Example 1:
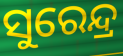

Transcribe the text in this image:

ସୁରେନ୍ଦ୍ର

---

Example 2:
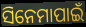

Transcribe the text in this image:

ସିନେମାପାଇଁ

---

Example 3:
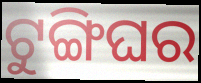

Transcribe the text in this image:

ଟୁଙ୍ଗିଘର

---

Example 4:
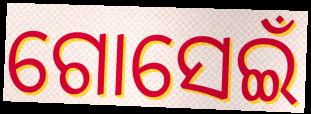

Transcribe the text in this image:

ଗୋସେଇଁ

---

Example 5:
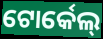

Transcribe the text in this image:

ଟୋର୍କେଲ୍